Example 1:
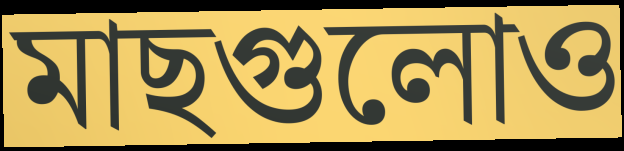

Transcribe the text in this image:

মাছগুলোও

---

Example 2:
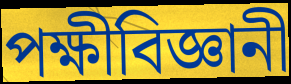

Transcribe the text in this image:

পক্ষীবিজ্ঞানী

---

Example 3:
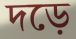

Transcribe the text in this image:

দড়ে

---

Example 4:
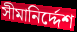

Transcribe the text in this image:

সীমানির্দ্দেশ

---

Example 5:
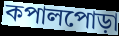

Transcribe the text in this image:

কপালপোড়া